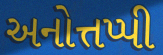
અનોત્તપ્પી